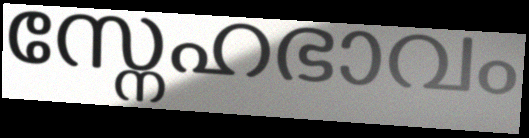
സ്നേഹഭാവം